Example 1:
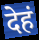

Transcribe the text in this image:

देहं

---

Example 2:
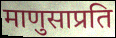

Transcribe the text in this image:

माणुसाप्रति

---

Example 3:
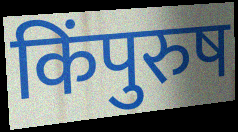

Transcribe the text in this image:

किंपुरुष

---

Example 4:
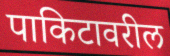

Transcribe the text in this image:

पाकिटावरील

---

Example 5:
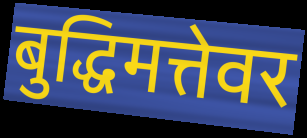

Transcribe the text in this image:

बुद्धिमत्तेवर